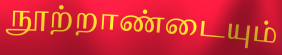
நூற்றாண்டையும்